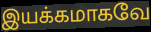
இயக்கமாகவே